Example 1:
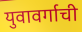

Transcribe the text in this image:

युवावर्गाची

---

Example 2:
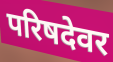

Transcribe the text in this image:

परिषदेवर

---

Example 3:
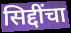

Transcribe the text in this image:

सिद्दींचा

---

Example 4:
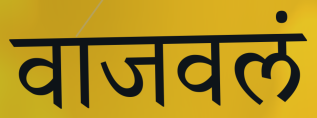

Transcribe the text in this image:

वाजवलं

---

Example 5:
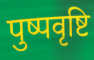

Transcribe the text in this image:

पुष्पवृष्टि